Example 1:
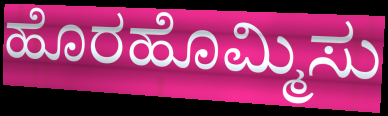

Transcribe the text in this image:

ಹೊರಹೊಮ್ಮಿಸು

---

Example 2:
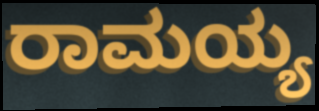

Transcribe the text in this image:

ರಾಮಯ್ಯ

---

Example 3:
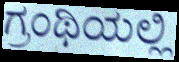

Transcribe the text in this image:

ಗ್ರಂಥಿಯಲ್ಲಿ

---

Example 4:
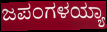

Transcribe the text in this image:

ಜಪಂಗಳಯ್ಯಾ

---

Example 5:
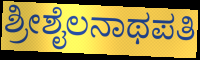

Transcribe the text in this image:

ಶ್ರೀಶೈಲನಾಥಪತಿ